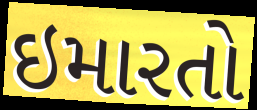
ઇમારતો